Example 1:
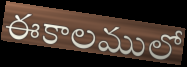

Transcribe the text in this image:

ఈకాలములో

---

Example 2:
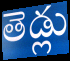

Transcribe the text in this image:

తెడ్లు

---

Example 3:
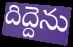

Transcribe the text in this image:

దిద్దెను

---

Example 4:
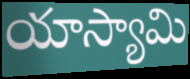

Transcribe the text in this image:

యాస్యామి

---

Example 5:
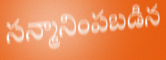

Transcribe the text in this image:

సన్మానింపబడిన